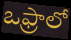
ఒఫ్రాలో